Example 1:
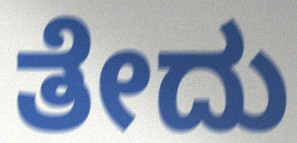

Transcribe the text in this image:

ತೇದು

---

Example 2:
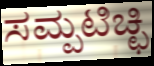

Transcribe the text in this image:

ಸಮ್ಪಟಿಚ್ಛಿ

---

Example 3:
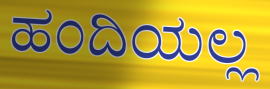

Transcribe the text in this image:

ಹಂದಿಯಲ್ಲ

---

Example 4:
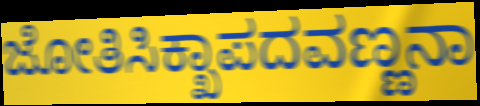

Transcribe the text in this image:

ಜೋತಿಸಿಕ್ಖಾಪದವಣ್ಣನಾ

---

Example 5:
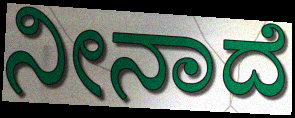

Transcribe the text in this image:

ನೀನಾದೆ